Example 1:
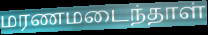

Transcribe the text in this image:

மரணமடைந்தாள்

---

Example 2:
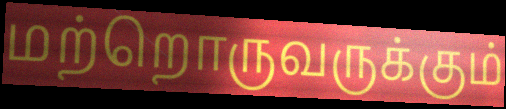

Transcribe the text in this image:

மற்றொருவருக்கும்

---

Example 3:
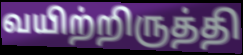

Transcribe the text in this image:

வயிற்றிருத்தி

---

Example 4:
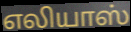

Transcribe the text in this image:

எலியாஸ்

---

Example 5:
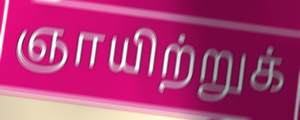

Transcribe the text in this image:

ஞாயிற்றுக்